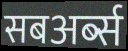
सबअर्ब्स